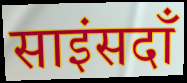
साइंसदाँ